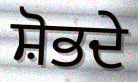
ਸ਼ੋਭਦੇ